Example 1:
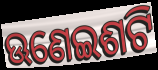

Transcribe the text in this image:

ଊଣେଇଶଟି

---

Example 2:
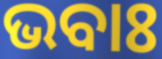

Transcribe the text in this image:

ଭବାଃ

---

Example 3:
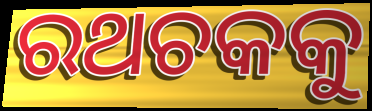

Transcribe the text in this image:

ରଥଚକକୁ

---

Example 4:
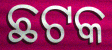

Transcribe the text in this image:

ଛଟକ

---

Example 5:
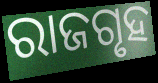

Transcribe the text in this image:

ରାଜଗୃହ